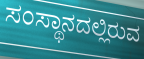
ಸಂಸ್ಥಾನದಲ್ಲಿರುವ